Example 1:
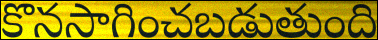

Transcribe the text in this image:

కొనసాగించబడుతుంది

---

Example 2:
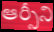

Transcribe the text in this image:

ఆర్సీని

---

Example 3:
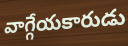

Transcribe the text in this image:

వాగ్గేయకారుడు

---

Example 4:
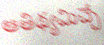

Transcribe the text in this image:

ఆతిథ్యమిచ్చే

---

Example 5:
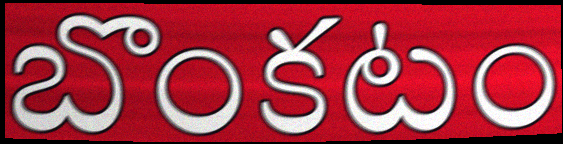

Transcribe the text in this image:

బొంకటం